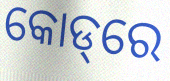
କୋଡ୍‌ରେ